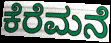
ಕೆರೆಮನೆ